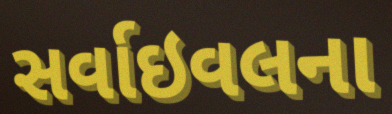
સર્વાઇવલના